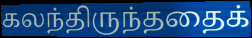
கலந்திருந்ததைக்